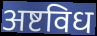
अष्टविध